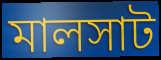
মালসাট